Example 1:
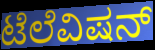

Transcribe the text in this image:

ಟೆಲೆವಿಷನ್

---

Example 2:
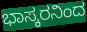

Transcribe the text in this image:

ಭಾಸ್ಕರನಿಂದ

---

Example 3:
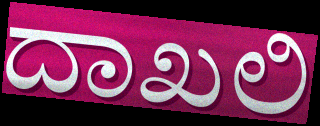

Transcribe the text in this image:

ದಾಖಲಿ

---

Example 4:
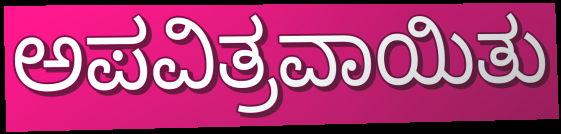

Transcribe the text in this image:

ಅಪವಿತ್ರವಾಯಿತು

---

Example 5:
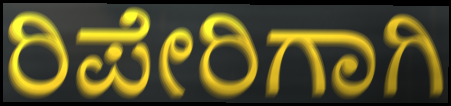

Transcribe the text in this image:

ರಿಪೇರಿಗಾಗಿ